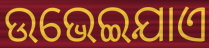
ଉଭେଇଯାଏ